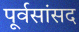
पूर्वसांसद